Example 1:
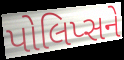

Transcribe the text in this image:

પોલિપ્સને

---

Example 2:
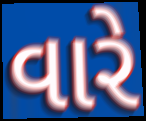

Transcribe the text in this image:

વારે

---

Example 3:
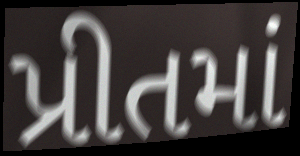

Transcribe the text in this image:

પ્રીતમાં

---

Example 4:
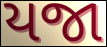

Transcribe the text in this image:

યજા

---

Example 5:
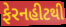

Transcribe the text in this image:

ફેરનહીટથી